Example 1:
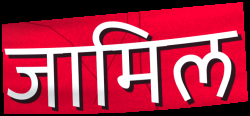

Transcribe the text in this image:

जामिल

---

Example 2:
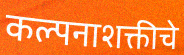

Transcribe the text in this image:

कल्पनाशक्तीचे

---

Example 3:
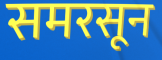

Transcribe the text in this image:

समरसून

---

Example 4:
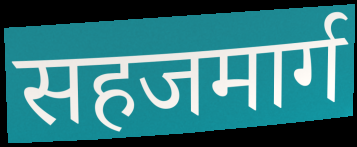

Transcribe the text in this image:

सहजमार्ग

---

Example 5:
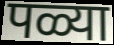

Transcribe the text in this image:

पळ्या